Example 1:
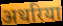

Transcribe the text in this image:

अथरिया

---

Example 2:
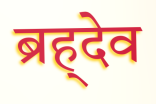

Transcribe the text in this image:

ब्रह्देव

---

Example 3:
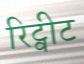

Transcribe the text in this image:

रिट्वीट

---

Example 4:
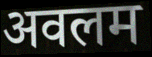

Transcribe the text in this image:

अवलम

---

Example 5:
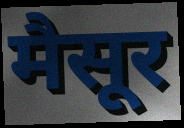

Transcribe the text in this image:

मैसूर